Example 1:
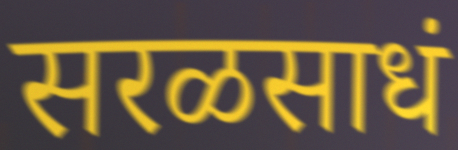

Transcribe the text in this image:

सरळसाधं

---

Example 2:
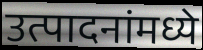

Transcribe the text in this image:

उत्पादनांमध्ये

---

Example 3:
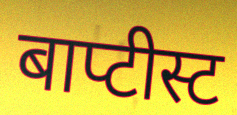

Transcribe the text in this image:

बाप्टीस्ट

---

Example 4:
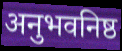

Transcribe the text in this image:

अनुभवनिष्ठ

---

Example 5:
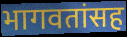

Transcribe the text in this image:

भागवतांसह